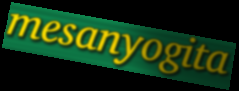
mesanyogita